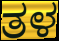
ತಳ